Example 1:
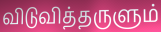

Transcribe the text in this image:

விடுவித்தருளும்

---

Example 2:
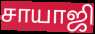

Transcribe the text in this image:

சாயாஜி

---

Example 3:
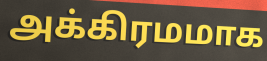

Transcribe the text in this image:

அக்கிரமமாக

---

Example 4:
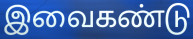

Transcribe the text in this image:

இவைகண்டு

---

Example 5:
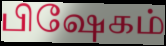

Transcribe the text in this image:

பிஷேகம்